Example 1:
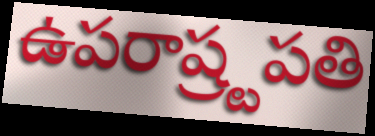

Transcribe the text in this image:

ఉపరాష్ర్టపతి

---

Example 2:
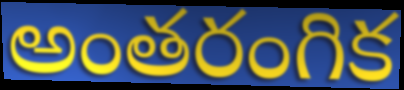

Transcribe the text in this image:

అంతరంగిక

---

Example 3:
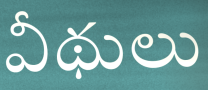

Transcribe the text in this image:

వీథులు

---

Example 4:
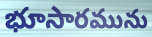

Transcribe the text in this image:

భూసారమును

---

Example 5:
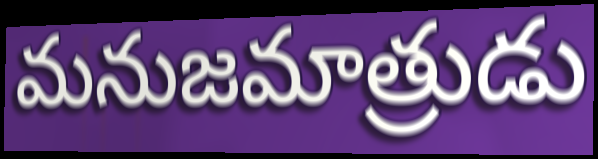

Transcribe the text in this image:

మనుజమాత్రుడు